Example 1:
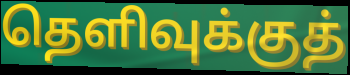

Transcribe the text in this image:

தெளிவுக்குத்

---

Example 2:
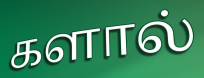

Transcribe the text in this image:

களால்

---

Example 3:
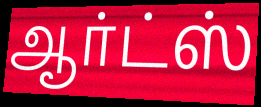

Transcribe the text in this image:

ஆர்ட்ஸ்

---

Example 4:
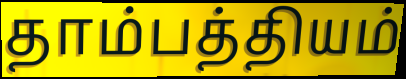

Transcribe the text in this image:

தாம்பத்தியம்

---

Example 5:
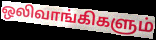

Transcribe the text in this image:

ஒலிவாங்கிகளும்